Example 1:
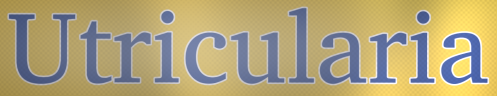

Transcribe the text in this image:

Utricularia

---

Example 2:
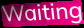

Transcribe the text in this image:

Waiting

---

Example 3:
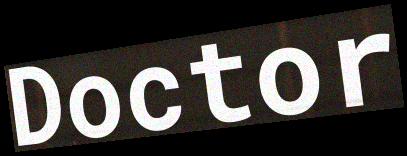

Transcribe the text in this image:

Doctor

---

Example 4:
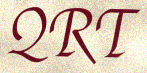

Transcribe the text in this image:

QRT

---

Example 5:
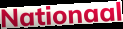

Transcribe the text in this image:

Nationaal